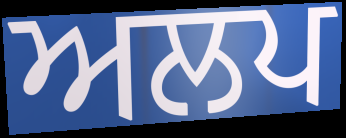
ਅਲਪ